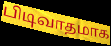
பிடிவாதமாக